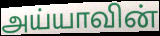
அய்யாவின்